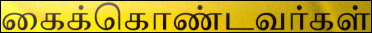
கைக்கொண்டவர்கள்